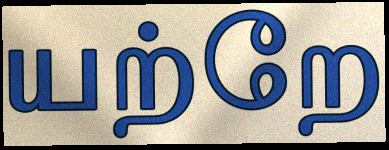
யற்றே